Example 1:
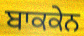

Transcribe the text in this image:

ਬਾਕਕੇਨ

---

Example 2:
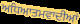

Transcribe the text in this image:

ਅਧਿਆਤਮਵਾਦੀਆਂ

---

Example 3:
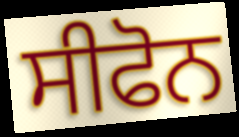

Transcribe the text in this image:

ਸੀਫੋਨ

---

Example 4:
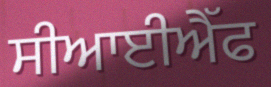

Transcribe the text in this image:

ਸੀਆਈਐੱਫ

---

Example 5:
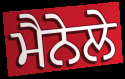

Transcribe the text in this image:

ਮੈਨੇਲੇ